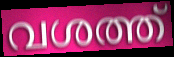
വശത്ത്